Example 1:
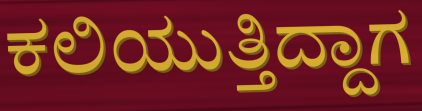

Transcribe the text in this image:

ಕಲಿಯುತ್ತಿದ್ದಾಗ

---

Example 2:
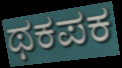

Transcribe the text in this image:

ಥಕಪಕ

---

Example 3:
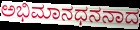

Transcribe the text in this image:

ಅಭಿಮಾನಧನನಾದ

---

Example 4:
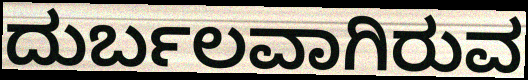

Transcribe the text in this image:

ದುರ್ಬಲವಾಗಿರುವ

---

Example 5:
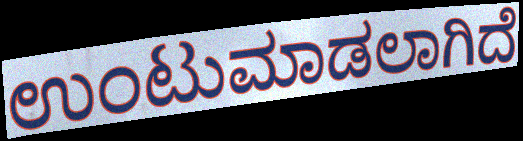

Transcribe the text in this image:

ಉಂಟುಮಾಡಲಾಗಿದೆ